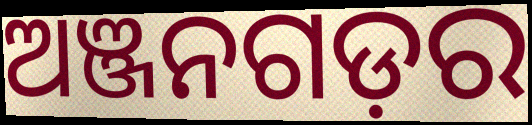
ଅଞ୍ଜନଗଡ଼ର